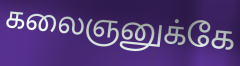
கலைஞனுக்கே